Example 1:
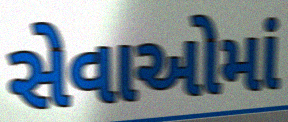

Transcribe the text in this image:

સેવાઓમાં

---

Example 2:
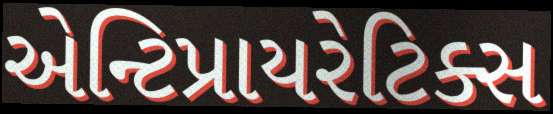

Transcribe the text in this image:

એન્ટિપ્રાયરેટિક્સ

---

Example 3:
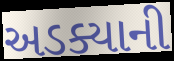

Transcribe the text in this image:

અડક્યાની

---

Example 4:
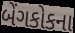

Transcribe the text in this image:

બેંગકોકના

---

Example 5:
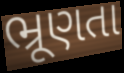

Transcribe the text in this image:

ભ્રૂણતા